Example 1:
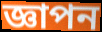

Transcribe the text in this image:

জ্ঞাপন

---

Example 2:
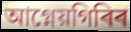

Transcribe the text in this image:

আগ্নেয়গিৰিৰ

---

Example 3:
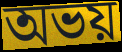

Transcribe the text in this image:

অভয়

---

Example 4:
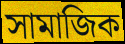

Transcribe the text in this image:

সামাজিক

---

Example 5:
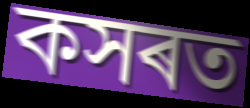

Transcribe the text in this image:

কসৰত